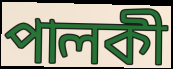
পালকী